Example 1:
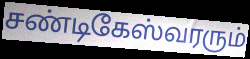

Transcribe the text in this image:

சண்டிகேஸ்வரரும்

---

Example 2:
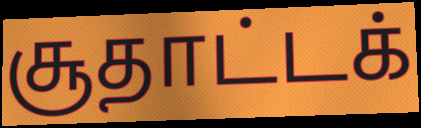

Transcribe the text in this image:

சூதாட்டக்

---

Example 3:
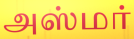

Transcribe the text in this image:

அஸ்மர்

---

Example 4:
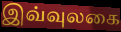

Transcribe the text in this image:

இவ்வுலகை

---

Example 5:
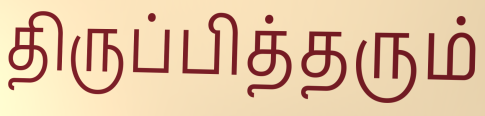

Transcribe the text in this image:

திருப்பித்தரும்